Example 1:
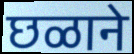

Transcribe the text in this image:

छळाने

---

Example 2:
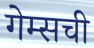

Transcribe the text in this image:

गेम्सची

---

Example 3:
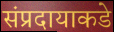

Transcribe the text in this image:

संप्रदायाकडे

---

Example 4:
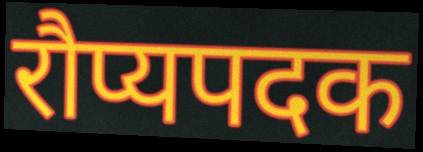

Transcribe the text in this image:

रौप्यपदक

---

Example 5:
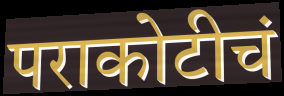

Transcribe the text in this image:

पराकोटीचं